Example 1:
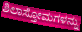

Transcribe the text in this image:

ಶಿಲಾಸ್ತೋಮಗಳನ್ನು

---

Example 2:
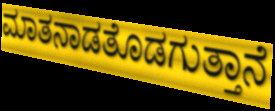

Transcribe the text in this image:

ಮಾತನಾಡತೊಡಗುತ್ತಾನೆ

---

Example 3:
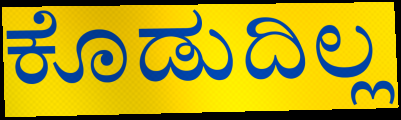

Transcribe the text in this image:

ಕೊಡುದಿಲ್ಲ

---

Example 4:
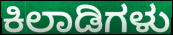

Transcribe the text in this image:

ಕಿಲಾಡಿಗಳು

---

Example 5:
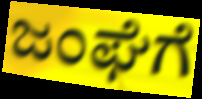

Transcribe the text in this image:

ಜಂಘೆಗೆ